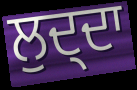
ਲੁਦ੍ਦਾ